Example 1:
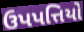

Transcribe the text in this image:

ઉપપત્તિયો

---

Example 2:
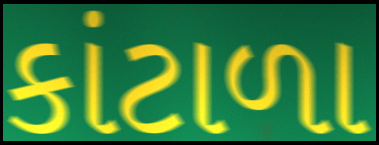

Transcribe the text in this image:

કાંટાળા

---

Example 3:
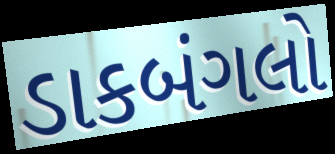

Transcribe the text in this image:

ડાકબંગલો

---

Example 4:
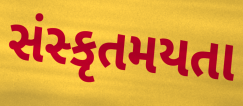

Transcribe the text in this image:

સંસ્કૃતમયતા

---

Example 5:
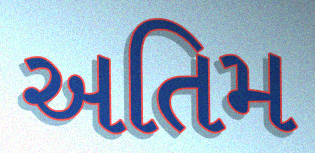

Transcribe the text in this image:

અતિમ